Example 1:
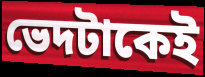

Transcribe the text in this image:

ভেদটাকেই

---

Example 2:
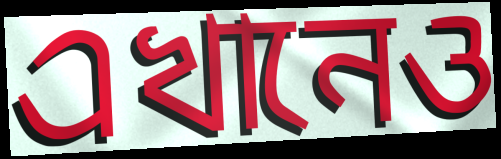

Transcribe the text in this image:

এখানেও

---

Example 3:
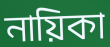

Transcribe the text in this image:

নায়িকা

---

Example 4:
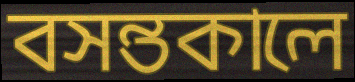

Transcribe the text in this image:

বসন্তকালে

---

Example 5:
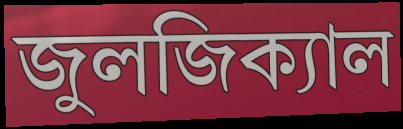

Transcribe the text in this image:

জুলজিক্যাল